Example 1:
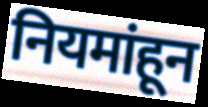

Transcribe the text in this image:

नियमांहून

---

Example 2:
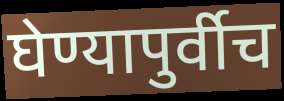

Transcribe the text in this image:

घेण्यापुर्वीच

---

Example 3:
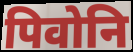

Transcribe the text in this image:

पिवोनि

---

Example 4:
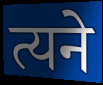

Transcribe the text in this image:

त्यने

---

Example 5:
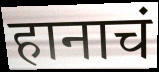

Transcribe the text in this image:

हानाचं